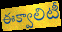
ఈక్వాలిటీ